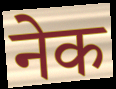
नेक